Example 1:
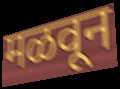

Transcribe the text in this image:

मळवून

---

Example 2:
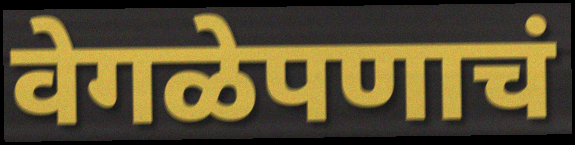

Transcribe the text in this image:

वेगळेपणाचं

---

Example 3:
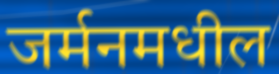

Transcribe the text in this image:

जर्मनमधील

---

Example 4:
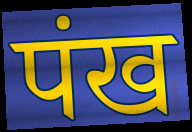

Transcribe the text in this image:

पंख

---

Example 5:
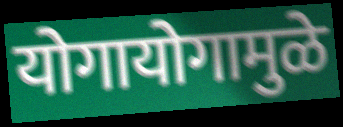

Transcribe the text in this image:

योगायोगामुळे